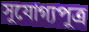
সুযোগ্যপুত্র